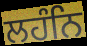
ਲਹੰਨਿ